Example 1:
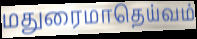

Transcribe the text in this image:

மதுரைமாதெய்வம்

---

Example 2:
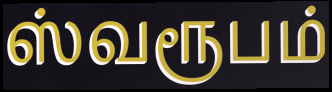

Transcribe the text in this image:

ஸ்வரூபம்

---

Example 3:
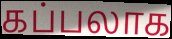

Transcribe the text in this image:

கப்பலாக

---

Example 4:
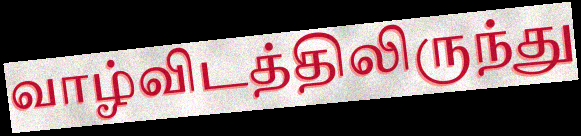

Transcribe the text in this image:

வாழ்விடத்திலிருந்து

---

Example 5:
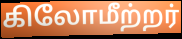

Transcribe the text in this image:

கிலோமீற்றர்